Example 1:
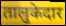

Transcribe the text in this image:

तालुकेदार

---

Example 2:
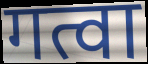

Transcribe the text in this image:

गत्वा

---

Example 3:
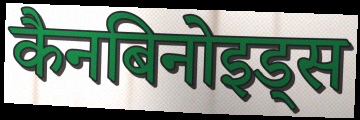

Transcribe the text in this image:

कैनबिनोइड्स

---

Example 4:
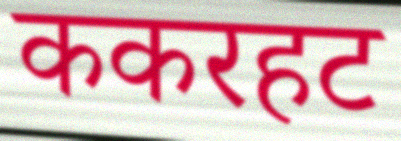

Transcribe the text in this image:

ककरहट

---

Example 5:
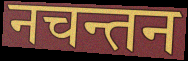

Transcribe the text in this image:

नचन्तन